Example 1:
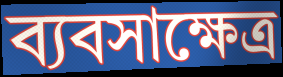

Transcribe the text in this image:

ব্যবসাক্ষেত্র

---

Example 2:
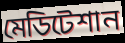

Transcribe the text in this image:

মেডিটেশান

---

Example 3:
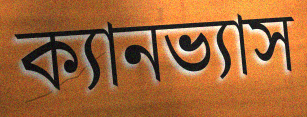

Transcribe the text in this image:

ক্যানভ্যাস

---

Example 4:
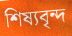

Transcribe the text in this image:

শিষ্যবৃন্দ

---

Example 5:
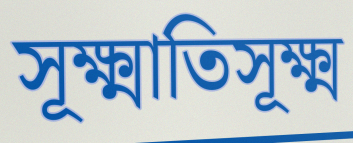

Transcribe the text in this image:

সূক্ষ্মাতিসূক্ষ্ম